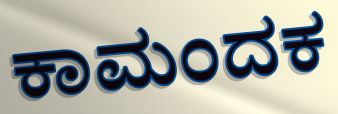
ಕಾಮಂದಕ